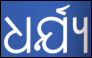
ଧର୍ଯ୍ୟ